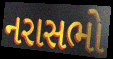
નરાસભો